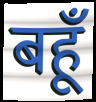
बहूँ